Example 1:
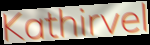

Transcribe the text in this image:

Kathirvel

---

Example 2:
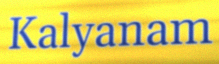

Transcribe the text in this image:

Kalyanam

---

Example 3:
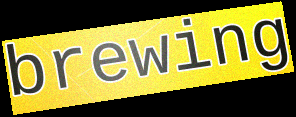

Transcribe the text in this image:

brewing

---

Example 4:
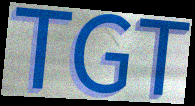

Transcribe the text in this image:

TGT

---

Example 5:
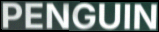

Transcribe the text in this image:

PENGUIN